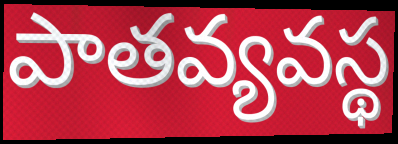
పాతవ్యవస్థ